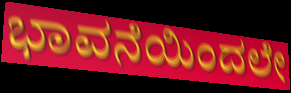
ಭಾವನೆಯಿಂದಲೇ